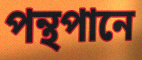
পন্থপানে